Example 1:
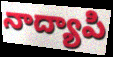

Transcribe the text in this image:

నాద్యాపి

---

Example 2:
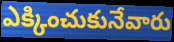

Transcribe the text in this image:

ఎక్కించుకునేవారు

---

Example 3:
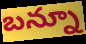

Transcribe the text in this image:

బన్నూ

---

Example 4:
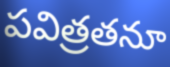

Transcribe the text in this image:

పవిత్రతనూ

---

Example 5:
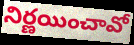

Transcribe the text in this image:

నిర్ణయించావో